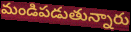
మండిపడుతున్నారు